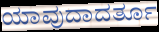
ಯಾವುದಾದರ್ತೂ